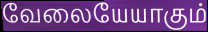
வேலையேயாகும்